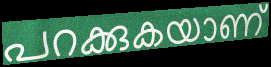
പറക്കുകയാണ്